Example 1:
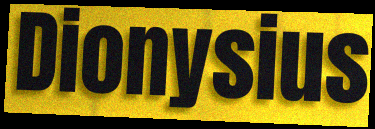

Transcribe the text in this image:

Dionysius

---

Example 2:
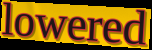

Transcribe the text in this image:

lowered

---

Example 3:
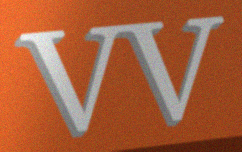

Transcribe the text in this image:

VV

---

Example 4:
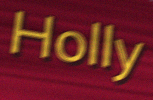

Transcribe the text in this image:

Holly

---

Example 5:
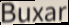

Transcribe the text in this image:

Buxar